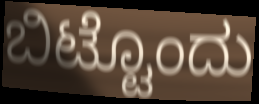
ಬಿಟ್ಟೊಂದು